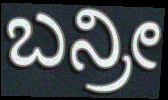
ಬನ್ರೀ